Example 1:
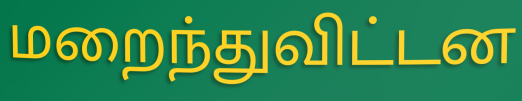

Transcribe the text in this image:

மறைந்துவிட்டன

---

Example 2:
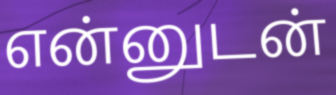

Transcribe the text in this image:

என்னுடன்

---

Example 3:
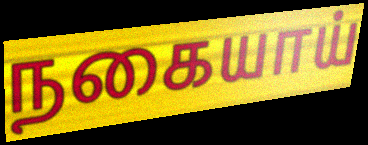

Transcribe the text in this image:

நகையாய்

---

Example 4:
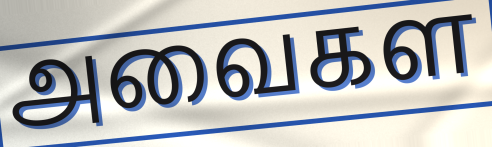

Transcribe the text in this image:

அவைகள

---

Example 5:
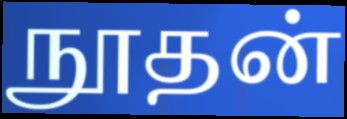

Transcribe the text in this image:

நூதன்